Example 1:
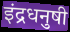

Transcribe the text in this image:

इंद्रधनुषी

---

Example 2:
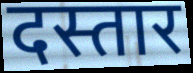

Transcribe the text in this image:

दस्तार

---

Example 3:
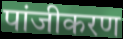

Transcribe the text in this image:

पांजीकरण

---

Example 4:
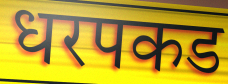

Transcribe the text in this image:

धरपकड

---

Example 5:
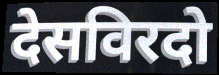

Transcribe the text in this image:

देसविरदो